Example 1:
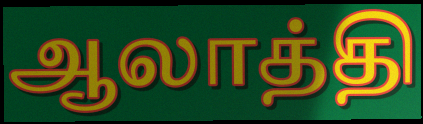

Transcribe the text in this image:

ஆலாத்தி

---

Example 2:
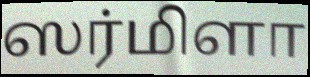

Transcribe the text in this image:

ஸர்மிளா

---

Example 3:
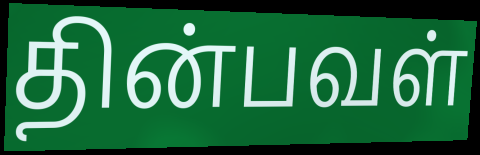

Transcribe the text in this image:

தின்பவள்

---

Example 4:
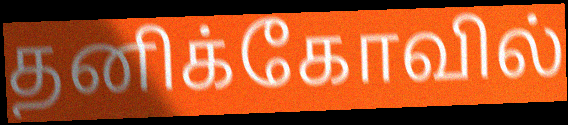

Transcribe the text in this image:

தனிக்கோவில்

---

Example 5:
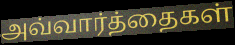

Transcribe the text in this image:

அவ்வார்த்தைகள்